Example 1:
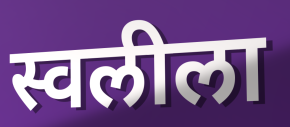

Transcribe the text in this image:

स्वलीला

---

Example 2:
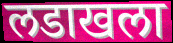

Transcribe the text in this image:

लडाखला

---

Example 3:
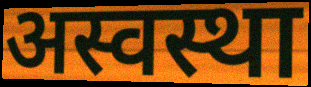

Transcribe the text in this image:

अस्वस्था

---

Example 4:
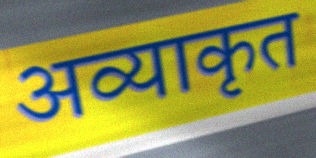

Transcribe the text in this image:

अव्याकृत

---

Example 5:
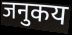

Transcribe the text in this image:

जनुकय